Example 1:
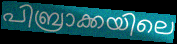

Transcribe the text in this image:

പിബ്രാക്കയിലെ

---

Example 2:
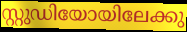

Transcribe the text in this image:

സ്റ്റുഡിയോയിലേക്കു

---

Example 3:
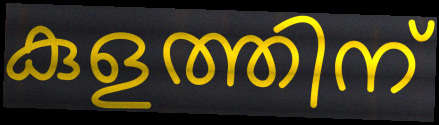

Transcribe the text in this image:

കുളത്തിന്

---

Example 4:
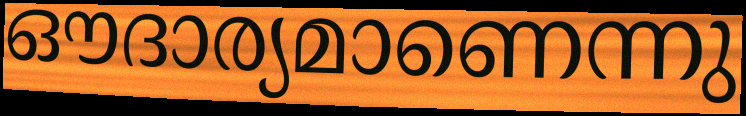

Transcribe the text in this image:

ഔദാര്യമാണെന്നു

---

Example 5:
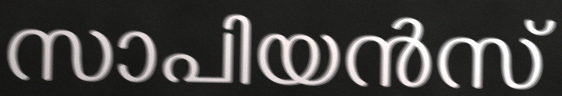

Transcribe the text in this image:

സാപിയൻസ്